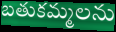
బతుకమ్మలను